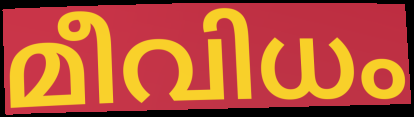
മീവിധം